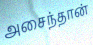
அசைந்தான்